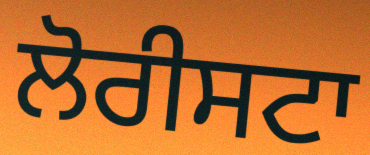
ਲੋਰੀਸਟਾ